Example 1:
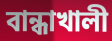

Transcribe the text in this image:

বান্ধাখালী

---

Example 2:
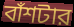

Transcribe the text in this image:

বাঁশটার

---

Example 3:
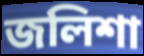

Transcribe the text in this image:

জলিশা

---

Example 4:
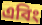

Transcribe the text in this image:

এবিং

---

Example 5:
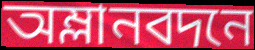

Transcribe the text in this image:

অম্লানবদনে